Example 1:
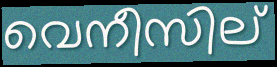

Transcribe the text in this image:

വെനീസില്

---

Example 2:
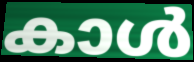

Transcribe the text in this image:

കാൾ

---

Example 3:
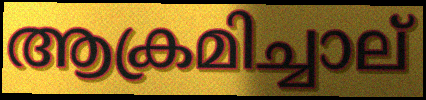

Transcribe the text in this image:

ആക്രമിച്ചാല്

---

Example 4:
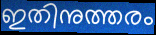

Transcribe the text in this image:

ഇതിനുത്തരം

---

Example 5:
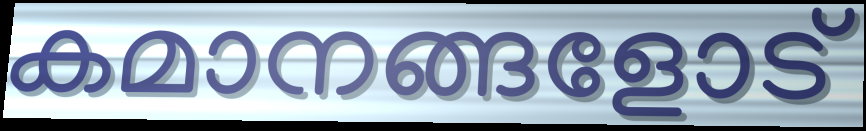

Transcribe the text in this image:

കമാനങ്ങളോട്